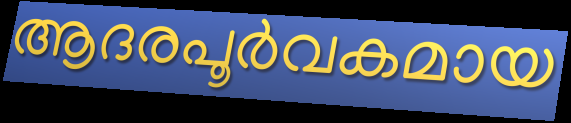
ആദരപൂർവകമായ